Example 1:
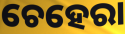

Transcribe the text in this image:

ଚେହେରା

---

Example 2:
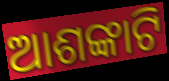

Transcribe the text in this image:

ଆଶଙ୍କାଟି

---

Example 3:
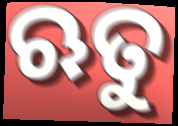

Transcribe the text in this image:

ଋତୁ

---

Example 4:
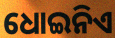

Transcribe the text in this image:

ଧୋଇନିଏ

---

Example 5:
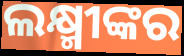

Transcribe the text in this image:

ଲକ୍ଷ୍ମୀଙ୍କର